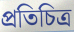
প্রতিচিত্র